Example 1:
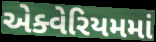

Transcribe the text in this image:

એક્વેરિયમમાં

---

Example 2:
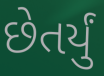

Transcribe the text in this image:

છેતર્યું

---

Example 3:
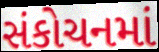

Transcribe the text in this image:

સંકોચનમાં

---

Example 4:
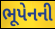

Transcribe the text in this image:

ભૂપેનની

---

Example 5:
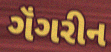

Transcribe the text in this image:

ગૅંગરીન